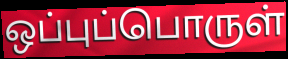
ஒப்புப்பொருள்